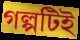
গল্পটিই